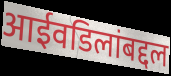
आईवडिलांबद्दल